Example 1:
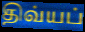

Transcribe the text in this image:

திவ்யப்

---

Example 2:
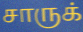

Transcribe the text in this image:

சாருக்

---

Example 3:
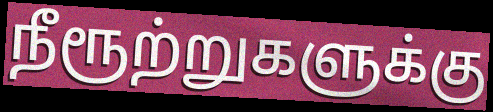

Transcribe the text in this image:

நீரூற்றுகளுக்கு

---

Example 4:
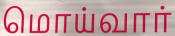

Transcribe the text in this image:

மொய்வார்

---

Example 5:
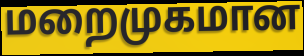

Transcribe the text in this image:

மறைமுகமான